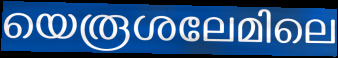
യെരൂശലേമിലെ